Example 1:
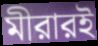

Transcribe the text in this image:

মীরারই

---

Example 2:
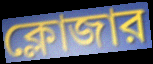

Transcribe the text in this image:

ক্লোজার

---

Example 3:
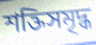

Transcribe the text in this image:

শক্তিসমৃদ্ধ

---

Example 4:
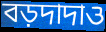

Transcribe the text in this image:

বড়দাদাও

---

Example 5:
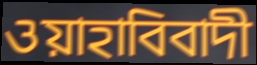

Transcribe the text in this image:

ওয়াহাবিবাদী